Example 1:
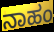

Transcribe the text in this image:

ನಾಹಂ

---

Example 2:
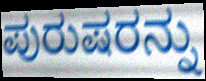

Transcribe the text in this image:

ಪುರುಷರನ್ನು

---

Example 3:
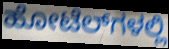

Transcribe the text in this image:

ಹೋಟೆಲ್‌ಗಳಲ್ಲಿ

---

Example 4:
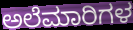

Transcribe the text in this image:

ಅಲೆಮಾರಿಗಳ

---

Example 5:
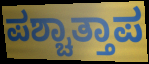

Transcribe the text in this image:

ಪಶ್ಚಾತ್ತಾಪ